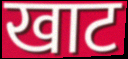
खाट